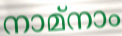
നാമ്നാം